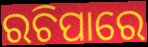
ରଚିପାରେ